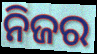
ନିଜର